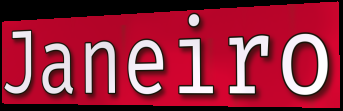
Janeiro